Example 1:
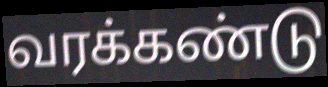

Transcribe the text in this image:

வரக்கண்டு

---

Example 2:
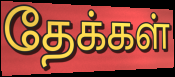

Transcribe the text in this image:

தேக்கள்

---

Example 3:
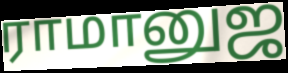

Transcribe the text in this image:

ராமானுஜ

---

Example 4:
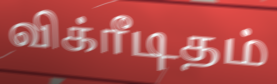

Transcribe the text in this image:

விக்ரீடிதம்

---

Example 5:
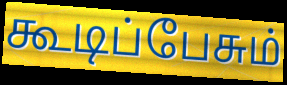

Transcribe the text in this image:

கூடிப்பேசும்